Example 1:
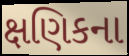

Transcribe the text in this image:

ક્ષણિકના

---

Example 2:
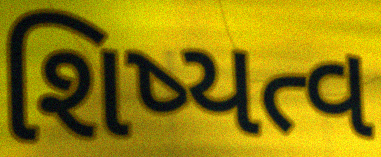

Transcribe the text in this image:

શિષ્યત્વ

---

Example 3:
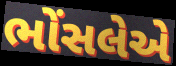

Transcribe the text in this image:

ભોંસલેએ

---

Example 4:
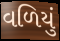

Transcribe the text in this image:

વળિયું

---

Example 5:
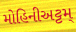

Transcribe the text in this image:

મોહિનીઅટ્ટમ્